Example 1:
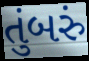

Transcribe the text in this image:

તુંબરું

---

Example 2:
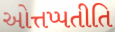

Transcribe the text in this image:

ઓત્તપ્પતીતિ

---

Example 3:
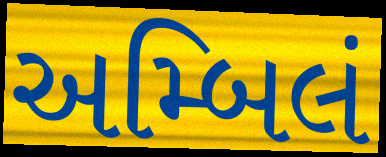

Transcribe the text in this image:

અમ્બિલં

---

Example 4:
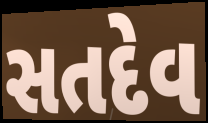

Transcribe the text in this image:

સતદેવ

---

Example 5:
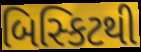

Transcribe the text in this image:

બિસ્કિટથી